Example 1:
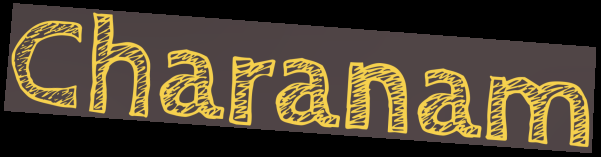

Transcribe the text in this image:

Charanam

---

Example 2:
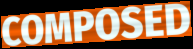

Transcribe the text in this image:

COMPOSED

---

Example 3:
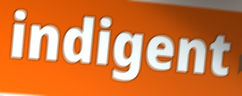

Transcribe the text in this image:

indigent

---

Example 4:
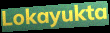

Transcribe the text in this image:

Lokayukta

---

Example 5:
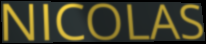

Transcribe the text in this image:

NICOLAS